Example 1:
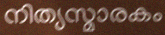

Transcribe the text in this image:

നിത്യസ്മാരകം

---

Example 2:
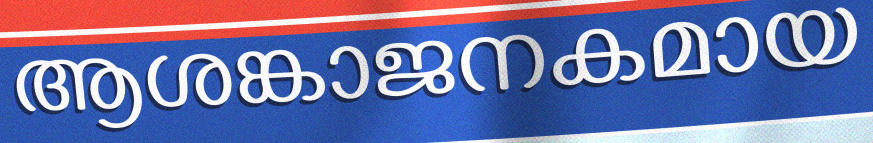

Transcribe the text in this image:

ആശങ്കാജനകമായ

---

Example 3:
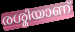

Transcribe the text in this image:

രശ്മിയാണ്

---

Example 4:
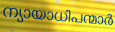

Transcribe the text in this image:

ന്യായാധിപന്മാർ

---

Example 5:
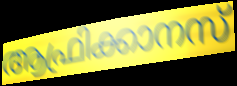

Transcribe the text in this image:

ആഫ്രിക്കാനസ്